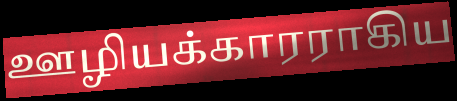
ஊழியக்காரராகிய